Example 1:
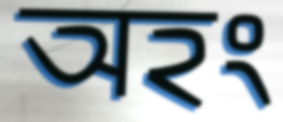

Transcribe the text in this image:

অহং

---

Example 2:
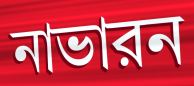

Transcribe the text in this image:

নাভারন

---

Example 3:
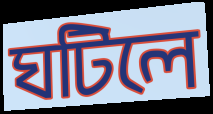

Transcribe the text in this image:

ঘটিলে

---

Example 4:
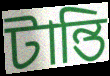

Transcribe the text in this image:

টান্তি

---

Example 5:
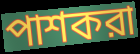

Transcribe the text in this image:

পাশকরা